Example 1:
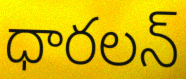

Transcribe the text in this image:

ధారలన్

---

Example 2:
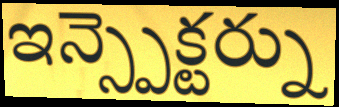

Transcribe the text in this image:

ఇన్స్పెక్టర్ను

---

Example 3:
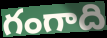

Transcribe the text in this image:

గంగాది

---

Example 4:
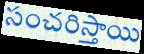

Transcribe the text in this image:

సంచరిస్తాయి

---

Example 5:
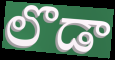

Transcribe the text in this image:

లొడా